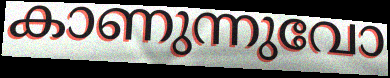
കാണുന്നുവോ